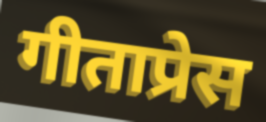
गीताप्रेस